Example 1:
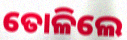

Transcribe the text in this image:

ତୋଳିଲେ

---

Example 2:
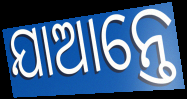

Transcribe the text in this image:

ଯାଆନ୍ତେ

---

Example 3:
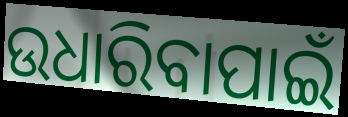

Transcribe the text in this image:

ଉଧାରିବାପାଇଁ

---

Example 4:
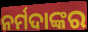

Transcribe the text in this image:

ନର୍ମଦାଙ୍କର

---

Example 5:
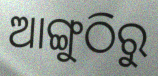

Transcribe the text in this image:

ଆଙ୍ଗୁଠିରୁ